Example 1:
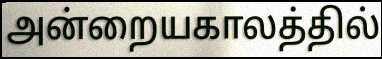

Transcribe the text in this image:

அன்றையகாலத்தில்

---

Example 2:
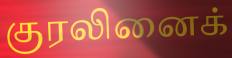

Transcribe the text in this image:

குரலினைக்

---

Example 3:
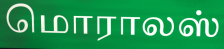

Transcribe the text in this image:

மொராலஸ்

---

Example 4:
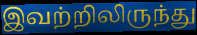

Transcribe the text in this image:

இவற்றிலிருந்து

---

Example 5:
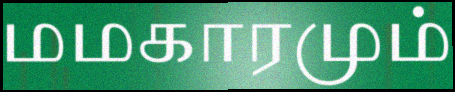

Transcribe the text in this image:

மமகாரமும்